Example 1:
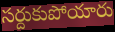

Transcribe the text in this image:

సర్దుకుపోయారు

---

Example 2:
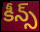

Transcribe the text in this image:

కీన్స్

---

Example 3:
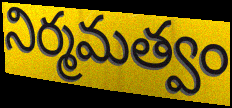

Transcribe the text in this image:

నిర్మమత్వం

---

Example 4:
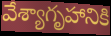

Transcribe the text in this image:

వేశ్యాగృహానికి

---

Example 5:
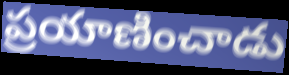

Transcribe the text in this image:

ప్రయాణించాడు